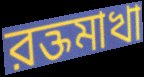
রক্তমাখা